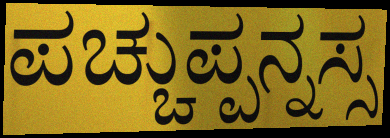
ಪಚ್ಚುಪ್ಪನ್ನಸ್ಸ